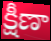
క్షీణా